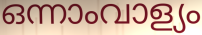
ഒന്നാംവാള്യം